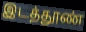
இடத்தூண்